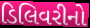
ડિલિવરીનો